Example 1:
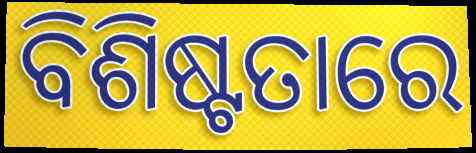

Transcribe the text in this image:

ବିଶିଷ୍ଟତାରେ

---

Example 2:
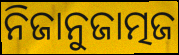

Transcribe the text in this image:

ନିଜାନୁଜାତ୍ମଜ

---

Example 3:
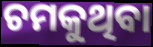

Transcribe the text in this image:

ଚମକୁଥିବା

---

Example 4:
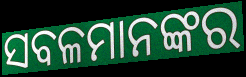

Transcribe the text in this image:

ସବଳମାନଙ୍କର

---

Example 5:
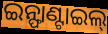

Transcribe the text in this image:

ଇନ୍ଫାଣ୍ଟାଇଲ୍